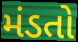
મંડતો